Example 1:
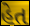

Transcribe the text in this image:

હેત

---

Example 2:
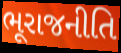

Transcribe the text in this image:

ભૂરાજનીતિ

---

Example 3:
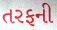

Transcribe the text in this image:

તરફની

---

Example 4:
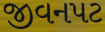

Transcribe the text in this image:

જીવનપટ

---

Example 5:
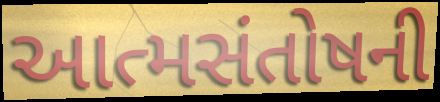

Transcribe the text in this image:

આત્મસંતોષની